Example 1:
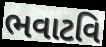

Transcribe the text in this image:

ભવાટવિ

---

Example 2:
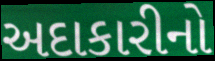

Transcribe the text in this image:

અદાકારીનો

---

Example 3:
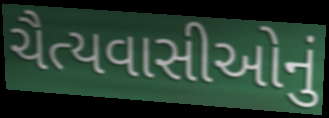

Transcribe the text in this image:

ચૈત્યવાસીઓનું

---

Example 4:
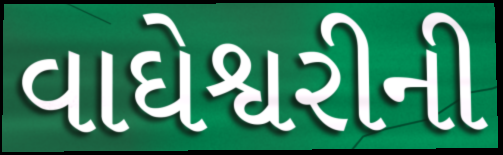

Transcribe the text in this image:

વાઘેશ્વરીની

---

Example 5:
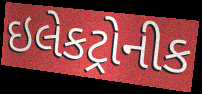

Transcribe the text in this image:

ઇલેકટ્રોનીક